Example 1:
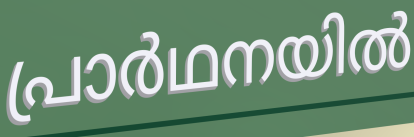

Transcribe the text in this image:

പ്രാർഥനയിൽ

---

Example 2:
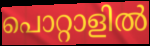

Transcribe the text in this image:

പൊറ്റാളിൽ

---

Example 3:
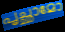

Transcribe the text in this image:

പൃച്ഛാമോ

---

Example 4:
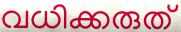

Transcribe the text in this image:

വധിക്കരുത്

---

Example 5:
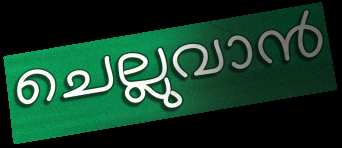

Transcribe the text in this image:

ചെല്ലുവാൻ